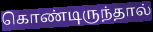
கொண்டிருந்தால்